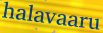
halavaaru